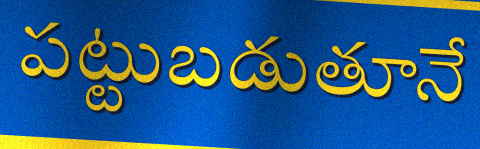
పట్టుబడుతూనే